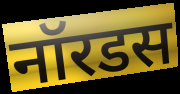
नॉरडस